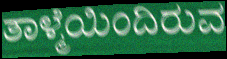
ತಾಳ್ಮೆಯಿಂದಿರುವ